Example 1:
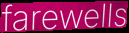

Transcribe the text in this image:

farewells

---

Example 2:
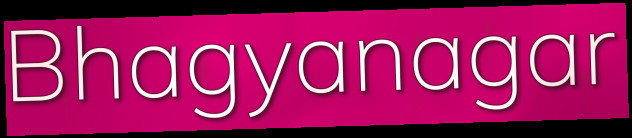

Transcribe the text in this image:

Bhagyanagar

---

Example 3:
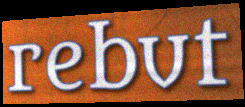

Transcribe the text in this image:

rebut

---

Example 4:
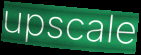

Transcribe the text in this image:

upscale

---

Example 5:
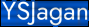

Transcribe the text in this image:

YSJagan